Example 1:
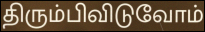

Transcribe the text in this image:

திரும்பிவிடுவோம்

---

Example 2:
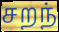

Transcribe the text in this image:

சறந்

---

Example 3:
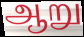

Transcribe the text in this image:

ஆறு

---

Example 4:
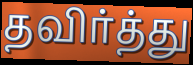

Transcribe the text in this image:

தவிர்த்து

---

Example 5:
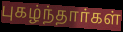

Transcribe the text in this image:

புகழ்ந்தார்கள்